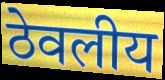
ठेवलीय